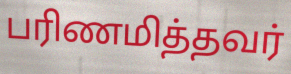
பரிணமித்தவர்